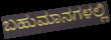
ಬಹುಮಾನಗಳಲ್ಲಿ